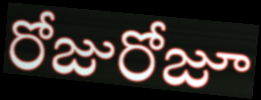
రోజురోజూ